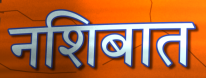
नशिबात